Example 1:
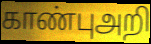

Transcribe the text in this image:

காண்புஅறி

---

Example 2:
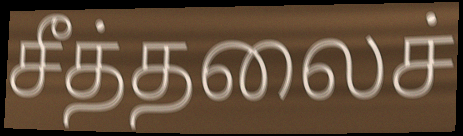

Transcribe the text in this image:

சீத்தலைச்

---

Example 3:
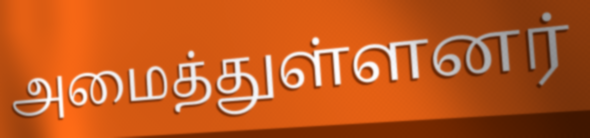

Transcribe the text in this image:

அமைத்துள்ளனர்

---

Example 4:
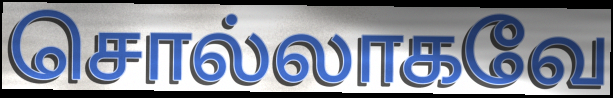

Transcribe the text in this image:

சொல்லாகவே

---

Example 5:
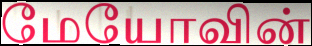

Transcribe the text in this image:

மேயோவின்